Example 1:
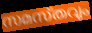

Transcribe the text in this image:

സമസ്‌തവും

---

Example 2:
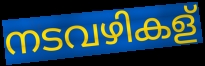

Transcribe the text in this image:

നടവഴികള്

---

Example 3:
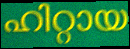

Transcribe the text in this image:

ഹിറ്റായ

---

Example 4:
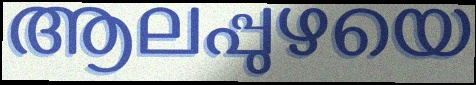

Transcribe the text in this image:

ആലപ്പുഴയെ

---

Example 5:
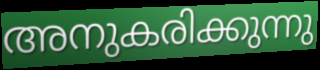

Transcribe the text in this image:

അനുകരിക്കുന്നു